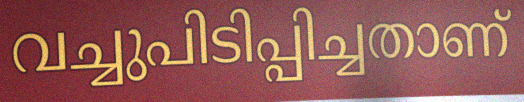
വച്ചുപിടിപ്പിച്ചതാണ്